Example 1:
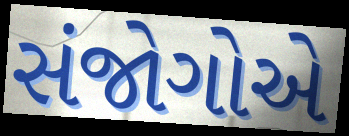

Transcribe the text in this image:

સંજોગોએ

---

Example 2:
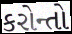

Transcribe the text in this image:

કરોન્તો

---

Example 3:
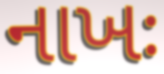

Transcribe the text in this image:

નાખઃ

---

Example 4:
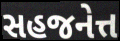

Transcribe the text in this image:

સહજનેત્ત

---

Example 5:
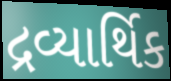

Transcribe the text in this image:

દ્રવ્યાર્થિક